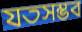
যতসম্ভব